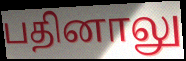
பதினாலு